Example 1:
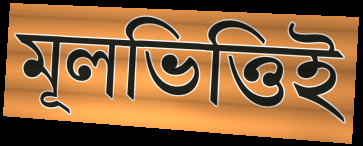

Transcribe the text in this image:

মূলভিত্তিই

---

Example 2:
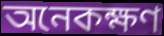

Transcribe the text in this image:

অনেকক্ষণ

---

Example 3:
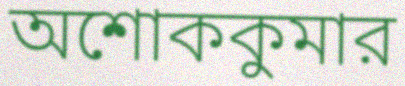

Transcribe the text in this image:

অশোককুমার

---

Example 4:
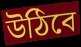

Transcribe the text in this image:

উঠিবে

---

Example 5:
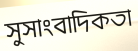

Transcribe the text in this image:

সুসাংবাদিকতা